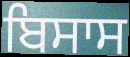
ਬਿਸਾਸ